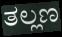
ತಲ್ಲಣ